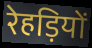
रेहड़ियों